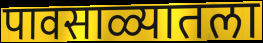
पावसाळ्यातला